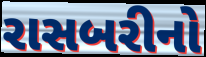
રાસબરીનો